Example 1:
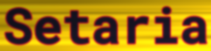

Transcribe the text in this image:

Setaria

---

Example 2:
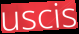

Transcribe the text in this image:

uscis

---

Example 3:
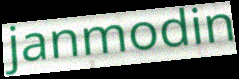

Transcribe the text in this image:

janmodin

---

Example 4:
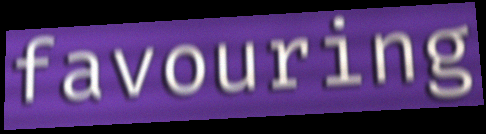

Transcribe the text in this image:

favouring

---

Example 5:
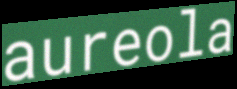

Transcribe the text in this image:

aureola